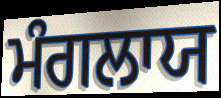
ਮੰਗਲਾਯ